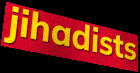
jihadists